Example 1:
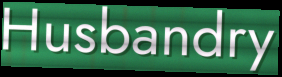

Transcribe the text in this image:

Husbandry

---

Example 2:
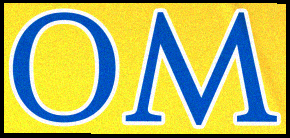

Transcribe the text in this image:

OM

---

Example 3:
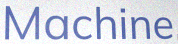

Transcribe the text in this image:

Machine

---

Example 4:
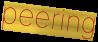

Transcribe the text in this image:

peering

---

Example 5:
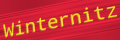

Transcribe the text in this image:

Winternitz